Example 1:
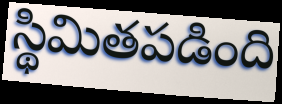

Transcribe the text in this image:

స్థిమితపడింది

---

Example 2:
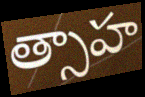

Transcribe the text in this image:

త్సాహ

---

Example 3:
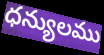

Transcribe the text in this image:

ధన్యులము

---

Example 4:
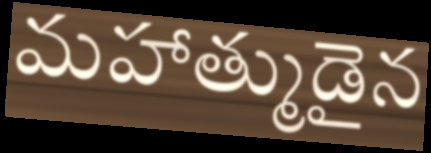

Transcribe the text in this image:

మహాత్ముడైన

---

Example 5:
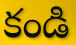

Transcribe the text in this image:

కండి